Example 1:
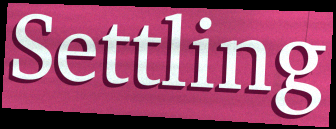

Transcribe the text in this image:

Settling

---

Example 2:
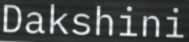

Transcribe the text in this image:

Dakshini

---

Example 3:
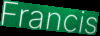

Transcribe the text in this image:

Francis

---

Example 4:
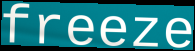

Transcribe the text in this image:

freeze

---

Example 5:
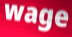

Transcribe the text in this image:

wage